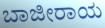
ಬಾಜೀರಾಯ